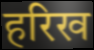
हरिख